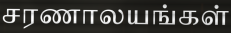
சரணாலயங்கள்